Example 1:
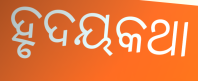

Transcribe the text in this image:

ହୃଦୟକଥା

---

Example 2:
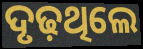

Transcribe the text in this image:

ଦୃଢ଼ଥିଲେ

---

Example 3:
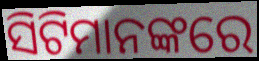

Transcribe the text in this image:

ସିଟିମାନଙ୍କରେ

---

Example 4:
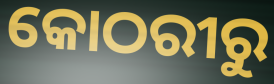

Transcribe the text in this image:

କୋଠରୀରୁ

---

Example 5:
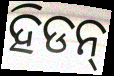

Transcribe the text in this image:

ହିଡନ୍